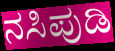
ನಸಿಪುಡಿ